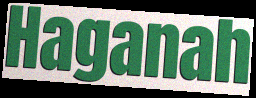
Haganah